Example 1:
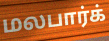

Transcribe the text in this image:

மலபார்க்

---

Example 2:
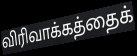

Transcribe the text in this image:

விரிவாக்கத்தைக்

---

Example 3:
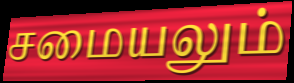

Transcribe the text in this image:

சமையலும்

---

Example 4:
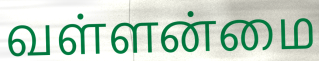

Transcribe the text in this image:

வள்ளன்மை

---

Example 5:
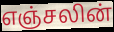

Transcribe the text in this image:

எஞ்சலின்